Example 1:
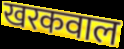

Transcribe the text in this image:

खरकवाल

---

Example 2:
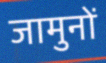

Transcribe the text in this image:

जामुनों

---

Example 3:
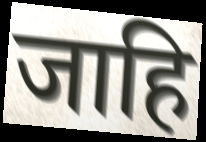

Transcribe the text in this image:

जाहि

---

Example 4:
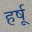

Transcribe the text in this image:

हर्षू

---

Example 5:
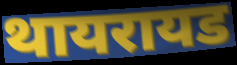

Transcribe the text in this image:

थायरायड